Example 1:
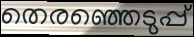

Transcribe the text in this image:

തെരഞ്ഞെടുപ്പ്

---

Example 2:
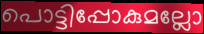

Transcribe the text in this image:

പൊട്ടിപ്പോകുമല്ലോ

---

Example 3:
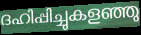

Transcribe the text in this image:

ദഹിപ്പിച്ചുകളഞ്ഞു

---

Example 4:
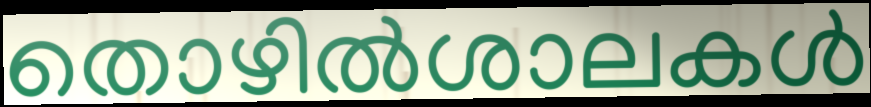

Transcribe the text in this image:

തൊഴിൽശാലകൾ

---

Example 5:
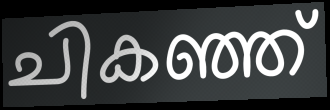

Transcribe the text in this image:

ചികഞ്ഞ്